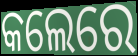
କଲେରେ